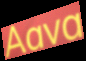
Aava